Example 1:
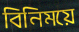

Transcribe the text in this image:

বিনিময়ে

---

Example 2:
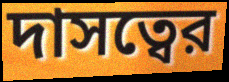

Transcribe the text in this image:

দাসত্বের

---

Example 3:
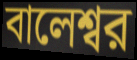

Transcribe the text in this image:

বালেশ্বর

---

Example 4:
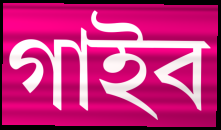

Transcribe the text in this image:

গাইব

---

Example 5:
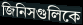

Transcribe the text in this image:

জিনিসগুলিকে